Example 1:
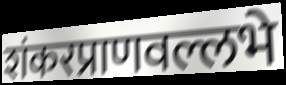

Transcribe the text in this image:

शंकरप्राणवल्लभे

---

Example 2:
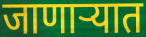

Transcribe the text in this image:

जाणाऱ्यात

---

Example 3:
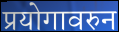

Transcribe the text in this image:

प्रयोगावरुन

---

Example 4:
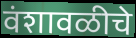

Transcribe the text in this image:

वंशावळीचे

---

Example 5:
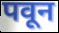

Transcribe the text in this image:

पवून